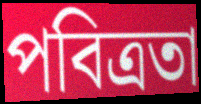
পবিত্ৰতা